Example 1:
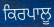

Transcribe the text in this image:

ਕਿਰਪਾਲੂ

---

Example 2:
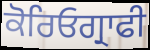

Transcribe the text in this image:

ਕੋਰਿਓਗ੍ਰਾਫੀ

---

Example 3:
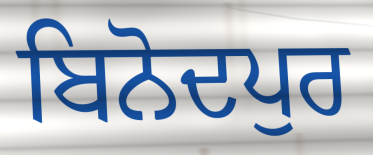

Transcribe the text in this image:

ਬਿਨੋਦਪੁਰ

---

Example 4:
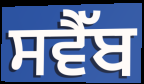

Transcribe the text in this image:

ਸਵੈੱਬ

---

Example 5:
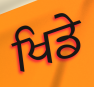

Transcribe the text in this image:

ਖਿਡੇ